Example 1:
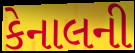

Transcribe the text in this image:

કેનાલની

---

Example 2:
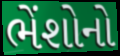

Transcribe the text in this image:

ભેંશોનો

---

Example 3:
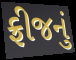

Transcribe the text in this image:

ફ્રીજનું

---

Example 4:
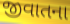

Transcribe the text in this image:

જીવાતના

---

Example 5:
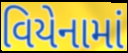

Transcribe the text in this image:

વિયેનામાં